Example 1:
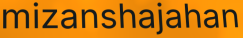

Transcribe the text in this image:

mizanshajahan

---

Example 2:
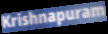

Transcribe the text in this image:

Krishnapuram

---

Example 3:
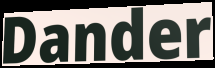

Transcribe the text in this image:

Dander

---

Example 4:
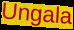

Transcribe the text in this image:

Ungala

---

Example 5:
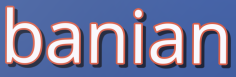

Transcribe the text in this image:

banian